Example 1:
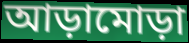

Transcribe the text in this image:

আড়ামোড়া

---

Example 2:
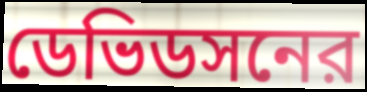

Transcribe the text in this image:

ডেভিডসনের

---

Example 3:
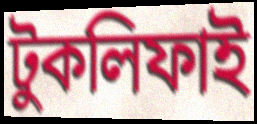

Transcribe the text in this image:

টুকলিফাই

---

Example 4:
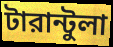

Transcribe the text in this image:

টারান্টুলা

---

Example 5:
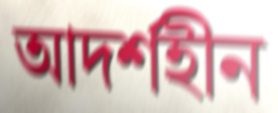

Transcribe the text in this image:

আদর্শহীন